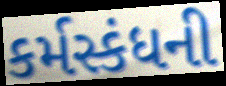
કર્મસ્કંધની